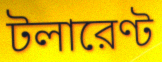
টলারেণ্ট